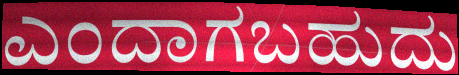
ಎಂದಾಗಬಹುದು